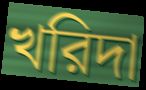
খরিদা